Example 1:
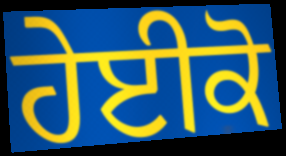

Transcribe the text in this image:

ਹੇਈਕੋ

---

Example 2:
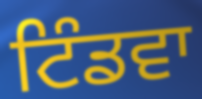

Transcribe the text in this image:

ਟਿੰਡਵਾ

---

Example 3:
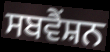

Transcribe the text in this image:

ਸਬਵੈਂਸ਼ਨ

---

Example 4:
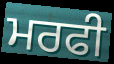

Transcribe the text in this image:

ਮਰਫੀ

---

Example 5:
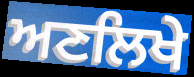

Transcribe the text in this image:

ਅਣਲਿਖੇ